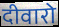
दीवारो